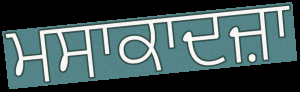
ਮਸਾਕਾਦਜ਼ਾ